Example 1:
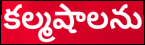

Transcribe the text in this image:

కల్మషాలను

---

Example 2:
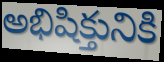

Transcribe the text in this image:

అభిషిక్తునికి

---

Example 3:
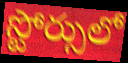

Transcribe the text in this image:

స్టోర్సులో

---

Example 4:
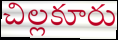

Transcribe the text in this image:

చిల్లకూరు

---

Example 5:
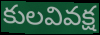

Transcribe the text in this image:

కులవివక్ష